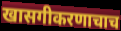
खासगीकरणाचाच